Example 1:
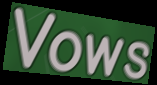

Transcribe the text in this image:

Vows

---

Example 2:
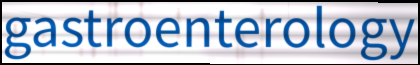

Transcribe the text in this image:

gastroenterology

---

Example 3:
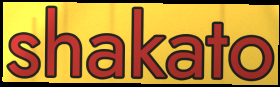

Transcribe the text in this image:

shakato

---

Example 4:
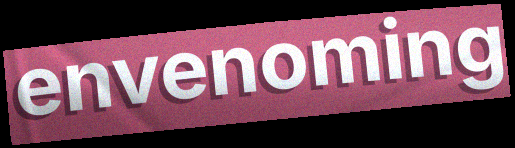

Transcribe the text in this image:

envenoming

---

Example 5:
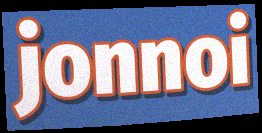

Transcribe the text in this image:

jonnoi